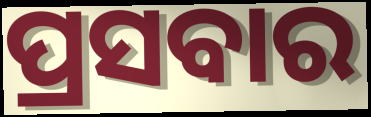
ପ୍ରସବାର